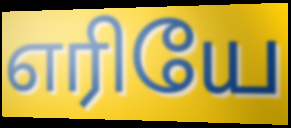
எரியே